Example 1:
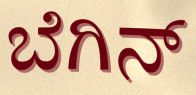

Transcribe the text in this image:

ಬೆಗಿನ್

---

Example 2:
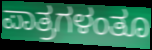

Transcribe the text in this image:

ಪಾತ್ರಗಳಂತೂ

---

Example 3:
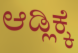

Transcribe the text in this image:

ಆಡ್ಲಿಕ್ಕೆ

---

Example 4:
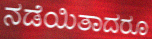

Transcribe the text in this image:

ನಡೆಯಿತಾದರೂ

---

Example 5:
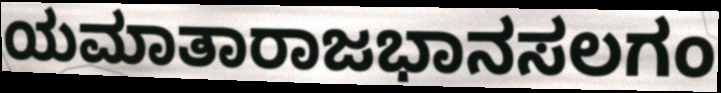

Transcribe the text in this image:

ಯಮಾತಾರಾಜಭಾನಸಲಗಂ